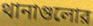
থানাগুলোর